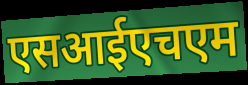
एसआईएचएम